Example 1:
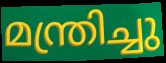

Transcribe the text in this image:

മന്ത്രിച്ചു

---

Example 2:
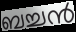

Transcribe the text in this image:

ബച്ചൻ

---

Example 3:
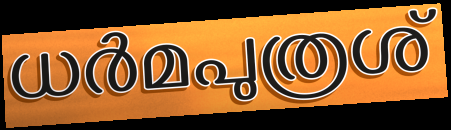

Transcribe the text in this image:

ധർമപുത്രശ്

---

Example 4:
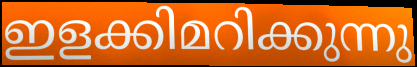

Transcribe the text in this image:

ഇളക്കിമറിക്കുന്നു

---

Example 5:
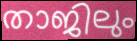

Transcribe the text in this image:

താജിലും